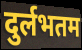
दुर्लभतम